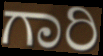
ಗಾರಿ